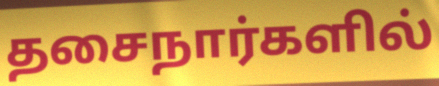
தசைநார்களில்